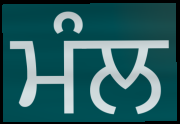
ਮੰਲ